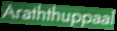
Araththuppaal